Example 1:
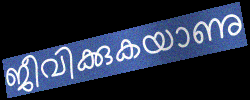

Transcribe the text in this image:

ജീവിക്കുകയാണു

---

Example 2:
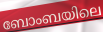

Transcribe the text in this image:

ബോംബയിലെ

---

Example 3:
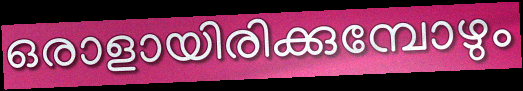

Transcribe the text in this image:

ഒരാളായിരിക്കുമ്പോഴും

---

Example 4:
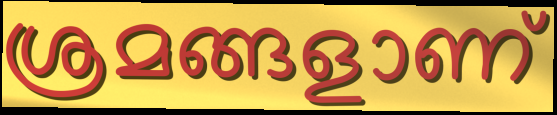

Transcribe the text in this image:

ശ്രമങ്ങളാണ്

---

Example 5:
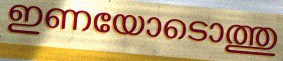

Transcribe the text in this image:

ഇണയോടൊത്തു